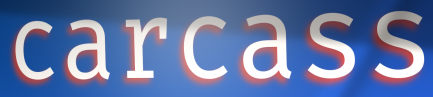
carcass